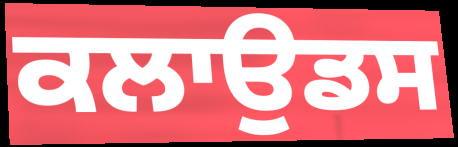
ਕਲਾਉਡਸ